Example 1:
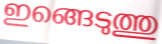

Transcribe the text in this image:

ഇങ്ങെടുത്തു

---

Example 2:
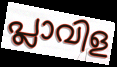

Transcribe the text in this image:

പ്ലാവിള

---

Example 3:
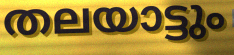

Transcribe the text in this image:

തലയാട്ടും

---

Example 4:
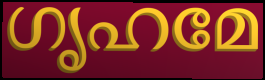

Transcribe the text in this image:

ഗൃഹമേ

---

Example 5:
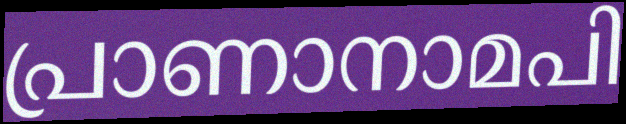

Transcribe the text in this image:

പ്രാണാനാമപി